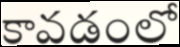
కావడంలో